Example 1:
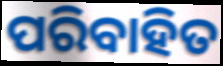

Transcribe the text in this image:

ପରିବାହିତ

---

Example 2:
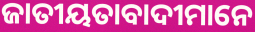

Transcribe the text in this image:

ଜାତୀୟତାବାଦୀମାନେ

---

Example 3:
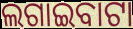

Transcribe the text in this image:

ଲଗାଇବାଟା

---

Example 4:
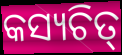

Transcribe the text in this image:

କସ୍ୟଚିତ୍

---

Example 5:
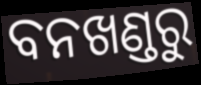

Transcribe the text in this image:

ବନଖଣ୍ଡରୁ